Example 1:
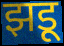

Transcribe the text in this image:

झडू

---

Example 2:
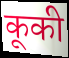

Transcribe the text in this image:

कूकी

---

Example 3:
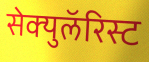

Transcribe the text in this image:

सेक्युलॅरिस्ट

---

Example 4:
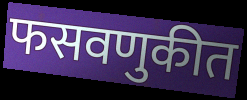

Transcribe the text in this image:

फसवणुकीत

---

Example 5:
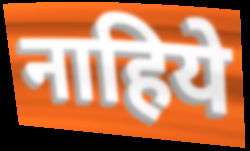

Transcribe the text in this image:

नाहिये